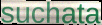
suchata